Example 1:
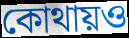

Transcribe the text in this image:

কোথায়ও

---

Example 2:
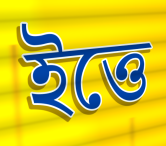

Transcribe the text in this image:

ইত্তে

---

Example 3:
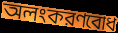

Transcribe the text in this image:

অলংকরণবোধ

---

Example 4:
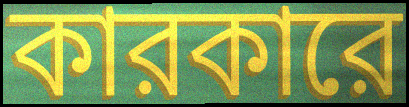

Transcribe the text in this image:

কারকারে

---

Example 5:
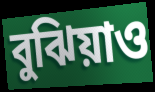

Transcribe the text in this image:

বুঝিয়াও